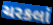
ચરકલાં